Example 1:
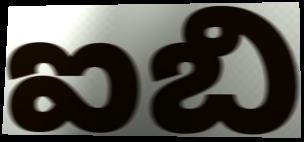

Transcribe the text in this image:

ఐబి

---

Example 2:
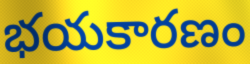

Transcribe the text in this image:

భయకారణం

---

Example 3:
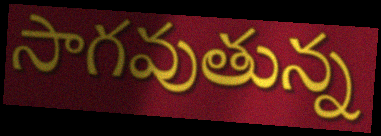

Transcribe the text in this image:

సాగవుతున్న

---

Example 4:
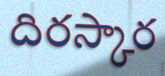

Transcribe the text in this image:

దిరస్కార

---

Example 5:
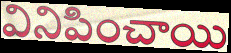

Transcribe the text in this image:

వినిపించాయి